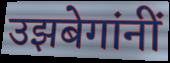
उझबेगांनीं